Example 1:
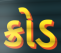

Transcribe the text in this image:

ક્રોડ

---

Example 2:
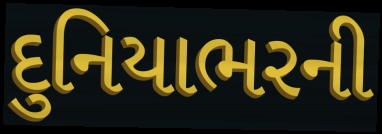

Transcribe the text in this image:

દુનિયાભરની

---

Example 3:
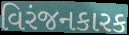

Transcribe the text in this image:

વિરંજનકારક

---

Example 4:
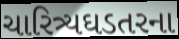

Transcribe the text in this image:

ચારિત્ર્યઘડતરના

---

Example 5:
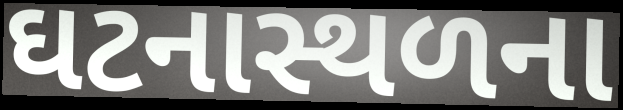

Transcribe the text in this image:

ઘટનાસ્થળના